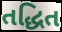
તદ્ધિત